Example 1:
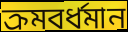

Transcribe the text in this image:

ক্রমবর্ধমান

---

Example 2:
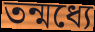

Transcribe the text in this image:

তন্মধ্যে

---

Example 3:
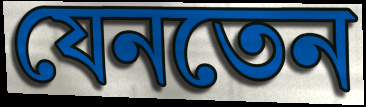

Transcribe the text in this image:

যেনতেন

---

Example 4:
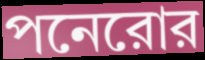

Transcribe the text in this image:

পনেরোর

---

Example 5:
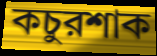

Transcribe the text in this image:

কচুরশাক